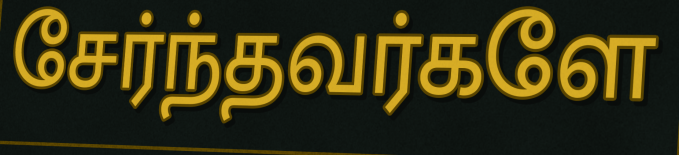
சேர்ந்தவர்களே